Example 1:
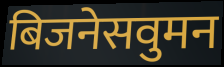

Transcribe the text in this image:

बिजनेसवुमन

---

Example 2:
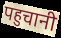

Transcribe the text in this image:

पहुचानी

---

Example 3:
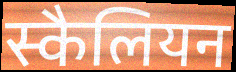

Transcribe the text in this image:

स्कैलियन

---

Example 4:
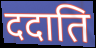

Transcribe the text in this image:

ददाति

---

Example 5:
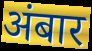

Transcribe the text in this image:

अंबार